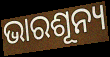
ଭାରଶୂନ୍ୟ